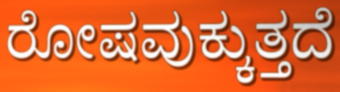
ರೋಷವುಕ್ಕುತ್ತದೆ